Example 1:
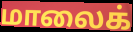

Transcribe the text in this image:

மாலைக்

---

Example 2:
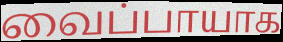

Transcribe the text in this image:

வைப்பாயாக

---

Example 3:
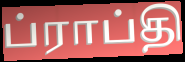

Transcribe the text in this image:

ப்ராப்தி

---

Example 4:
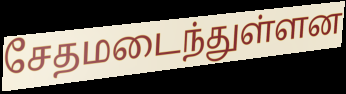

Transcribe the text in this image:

சேதமடைந்துள்ளன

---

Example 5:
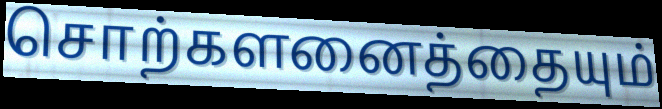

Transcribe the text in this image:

சொற்களனைத்தையும்